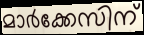
മാർക്കേസിന്